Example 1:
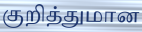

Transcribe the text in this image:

குறித்துமான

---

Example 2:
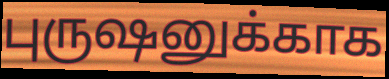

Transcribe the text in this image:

புருஷனுக்காக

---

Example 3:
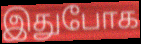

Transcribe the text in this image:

இதுபோக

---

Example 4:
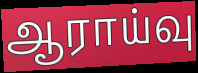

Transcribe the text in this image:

ஆராய்வு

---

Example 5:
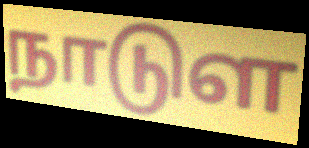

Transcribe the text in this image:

நாடுள